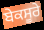
ਬੇਕਸੂਰੇ